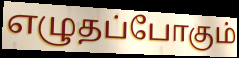
எழுதப்போகும்